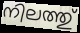
നിലത്തു്